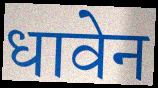
धावेन